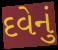
દવેનું